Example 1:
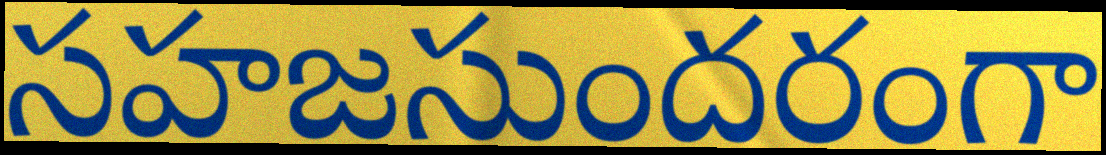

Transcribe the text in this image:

సహజసుందరంగా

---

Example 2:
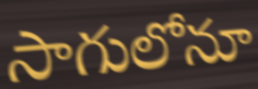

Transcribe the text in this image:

సాగులోనూ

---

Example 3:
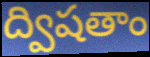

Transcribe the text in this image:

ద్విషతాం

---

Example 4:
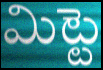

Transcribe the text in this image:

మిట్టె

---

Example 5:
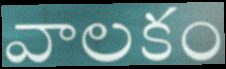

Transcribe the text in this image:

వాలకం